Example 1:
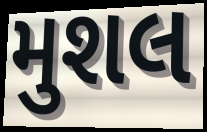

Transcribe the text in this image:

મુશલ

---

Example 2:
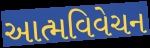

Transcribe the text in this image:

આત્મવિવેચન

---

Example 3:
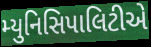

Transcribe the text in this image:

મ્યુનિસિપાલિટીએ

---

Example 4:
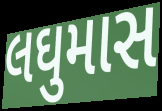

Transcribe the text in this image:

લઘુમાસ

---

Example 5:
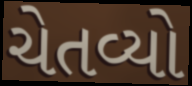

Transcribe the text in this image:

ચેતવ્યો